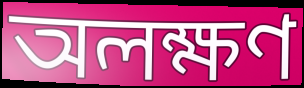
অলক্ষণ